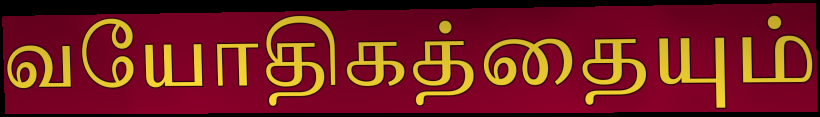
வயோதிகத்தையும்